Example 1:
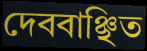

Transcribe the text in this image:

দেববাঞ্ছিত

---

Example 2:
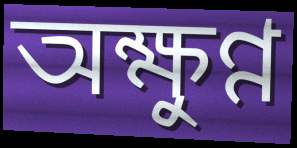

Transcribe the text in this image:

অক্ষুণ্ন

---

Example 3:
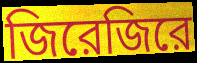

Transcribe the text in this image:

জিরেজিরে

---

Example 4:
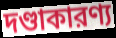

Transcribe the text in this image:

দণ্ডাকারণ্য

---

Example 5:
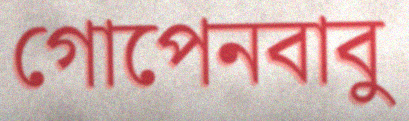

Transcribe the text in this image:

গোপেনবাবু